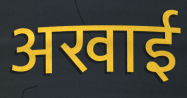
अखाई